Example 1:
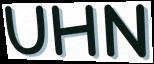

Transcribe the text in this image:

UHN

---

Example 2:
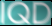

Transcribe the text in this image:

IQD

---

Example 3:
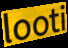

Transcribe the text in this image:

looti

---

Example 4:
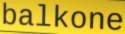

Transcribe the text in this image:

balkone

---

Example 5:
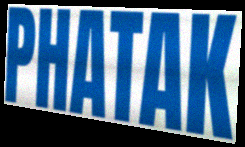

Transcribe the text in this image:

PHATAK